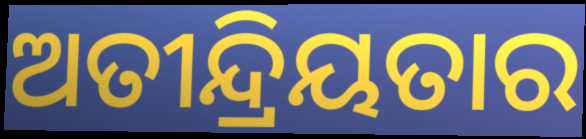
ଅତୀନ୍ଦ୍ରିୟତାର